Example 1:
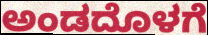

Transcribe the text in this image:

ಅಂಡದೊಳಗೆ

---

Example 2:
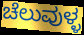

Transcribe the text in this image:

ಚೆಲುವುಳ್ಳ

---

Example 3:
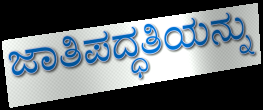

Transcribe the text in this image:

ಜಾತಿಪದ್ಧತಿಯನ್ನು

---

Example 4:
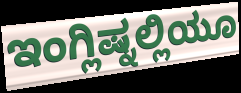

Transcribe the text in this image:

ಇಂಗ್ಲಿಷ್ನಲ್ಲಿಯೂ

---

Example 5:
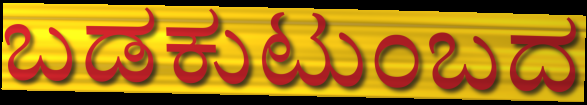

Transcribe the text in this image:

ಬಡಕುಟುಂಬದ